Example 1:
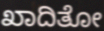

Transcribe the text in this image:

ಖಾದಿತೋ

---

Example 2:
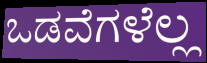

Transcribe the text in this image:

ಒಡವೆಗಳೆಲ್ಲ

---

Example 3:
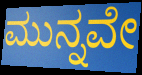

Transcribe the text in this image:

ಮುನ್ನವೇ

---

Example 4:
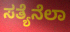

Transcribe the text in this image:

ಸತ್ಯೆನೆಲಾ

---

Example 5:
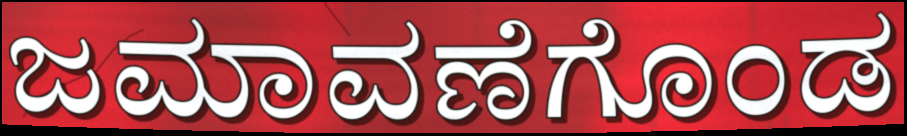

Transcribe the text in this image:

ಜಮಾವಣೆಗೊಂಡ